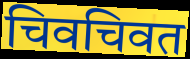
चिवचिवत